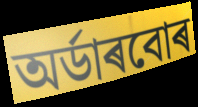
অৰ্ডাৰবোৰ